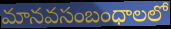
మానవసంబంధాలలో